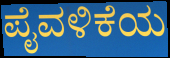
ಪೈವಳಿಕೆಯ